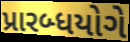
પ્રારબ્ધયોગે